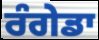
ਰੰਗੇਡਾ